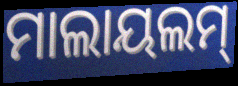
ମାଲାୟଲମ୍